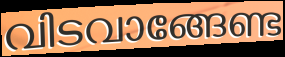
വിടവാങ്ങേണ്ട